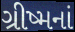
ગ્રીષ્મનાં